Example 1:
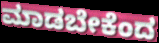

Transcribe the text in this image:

ಮಾಡಬೇಕೆಂದ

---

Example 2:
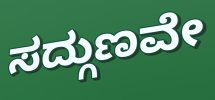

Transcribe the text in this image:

ಸದ್ಗುಣವೇ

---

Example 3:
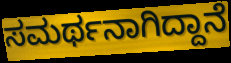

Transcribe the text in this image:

ಸಮರ್ಥನಾಗಿದ್ದಾನೆ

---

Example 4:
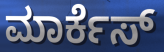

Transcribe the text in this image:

ಮಾರ್ಕೆಸ್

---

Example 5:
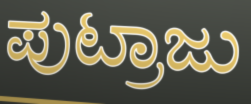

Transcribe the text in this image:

ಪುಟ್ರಾಜು